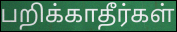
பறிக்காதீர்கள்